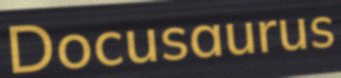
Docusaurus